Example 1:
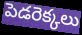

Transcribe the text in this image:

పెడరెక్కలు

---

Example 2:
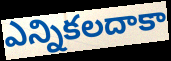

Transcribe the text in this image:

ఎన్నికలదాకా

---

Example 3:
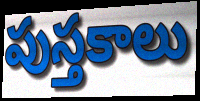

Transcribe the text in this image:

పుస్తకాలు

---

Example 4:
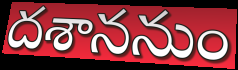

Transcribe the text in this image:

దశాననుం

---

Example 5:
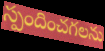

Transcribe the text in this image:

స్పందించగలను